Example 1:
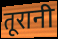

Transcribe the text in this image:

तूरानी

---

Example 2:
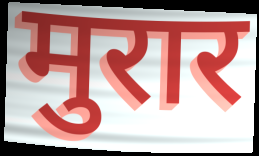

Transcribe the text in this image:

मुरार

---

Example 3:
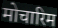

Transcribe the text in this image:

मोचारिम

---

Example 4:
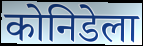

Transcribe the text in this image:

कोनिडेला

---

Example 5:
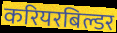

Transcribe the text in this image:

करियरबिल्डर